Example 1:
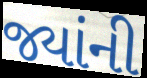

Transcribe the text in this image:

જ્યાંની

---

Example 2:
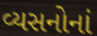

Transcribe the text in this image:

વ્યસનોનાં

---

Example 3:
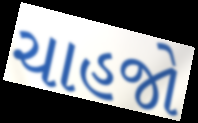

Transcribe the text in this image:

ચાહજો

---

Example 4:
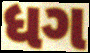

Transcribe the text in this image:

ધગ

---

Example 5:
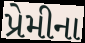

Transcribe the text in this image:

પ્રેમીના